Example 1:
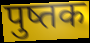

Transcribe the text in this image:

पुष्तक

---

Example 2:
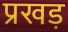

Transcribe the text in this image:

प्रखड़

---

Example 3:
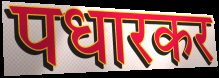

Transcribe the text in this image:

पधारकर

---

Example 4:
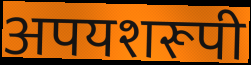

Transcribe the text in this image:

अपयशरूपी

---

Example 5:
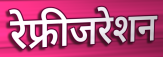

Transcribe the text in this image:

रेफ्रीजरेशन